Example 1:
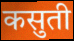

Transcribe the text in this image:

कसुती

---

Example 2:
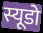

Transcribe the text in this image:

स्यूडो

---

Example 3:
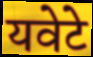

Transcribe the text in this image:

यवेटे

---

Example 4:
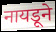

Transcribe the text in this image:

नायडूने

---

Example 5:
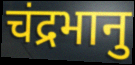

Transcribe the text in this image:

चंद्रभानु